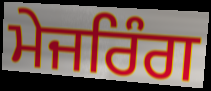
ਮੇਜਰਿੰਗ